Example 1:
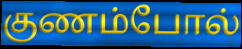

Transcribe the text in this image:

குணம்போல்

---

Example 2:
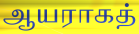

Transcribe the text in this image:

ஆயராகத்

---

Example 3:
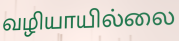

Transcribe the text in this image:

வழியாயில்லை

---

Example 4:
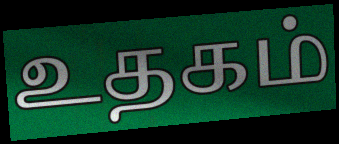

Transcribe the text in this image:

உதகம்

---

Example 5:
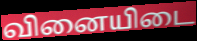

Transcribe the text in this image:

வினையிடை